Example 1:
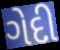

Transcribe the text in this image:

ગેદી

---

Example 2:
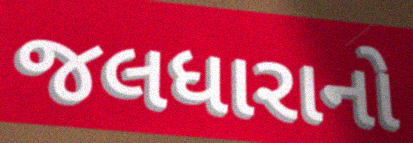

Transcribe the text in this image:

જલધારાનો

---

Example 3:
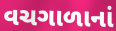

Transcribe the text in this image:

વચગાળાનાં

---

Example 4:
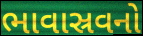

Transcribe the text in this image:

ભાવાસ્રવનો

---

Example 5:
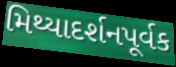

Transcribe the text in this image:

મિથ્યાદર્શનપૂર્વક